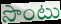
సొంటు